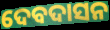
ଦେବଦାସନ